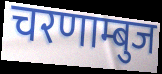
चरणाम्बुज